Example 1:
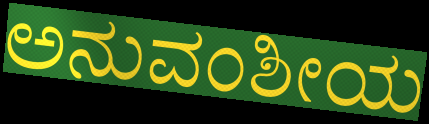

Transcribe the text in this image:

ಅನುವಂಶೀಯ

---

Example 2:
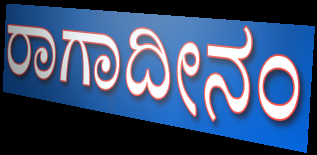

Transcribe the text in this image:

ರಾಗಾದೀನಂ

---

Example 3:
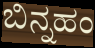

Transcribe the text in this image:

ಬಿನ್ನಹಂ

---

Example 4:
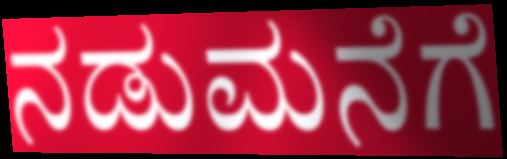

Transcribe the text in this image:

ನಡುಮನೆಗೆ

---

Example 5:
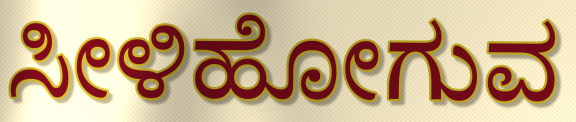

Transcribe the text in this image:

ಸೀಳಿಹೋಗುವ